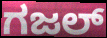
ಗಜಲ್